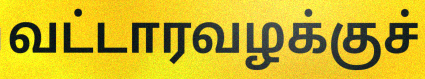
வட்டாரவழக்குச்